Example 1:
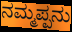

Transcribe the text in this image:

ನಮ್ಮಪ್ಪನು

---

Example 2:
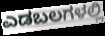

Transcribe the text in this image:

ಎಡಬಲಗಳಲ್ಲಿ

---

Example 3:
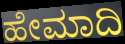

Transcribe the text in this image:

ಹೇಮಾದಿ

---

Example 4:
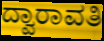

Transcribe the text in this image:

ದ್ವಾರಾವತಿ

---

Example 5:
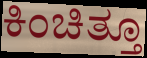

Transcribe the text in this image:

ಕಿಂಚಿತ್ತೂ